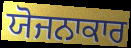
ਯੋਜਨਾਕਾਰ